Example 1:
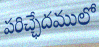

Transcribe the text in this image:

పరిచ్ఛేదములో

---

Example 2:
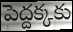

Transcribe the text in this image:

పెద్దక్కకు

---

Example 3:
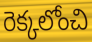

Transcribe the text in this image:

రెక్కలోంచి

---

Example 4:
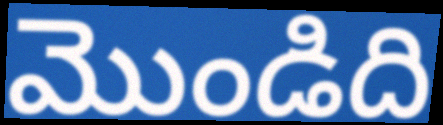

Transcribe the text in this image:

మొండిది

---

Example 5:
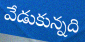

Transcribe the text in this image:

వేడుకున్నది